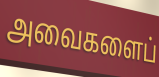
அவைகளைப்